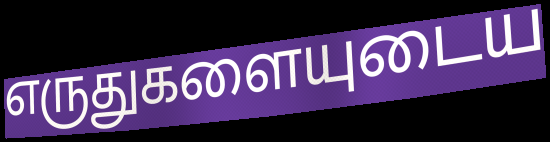
எருதுகளையுடைய